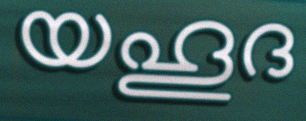
യഹൂദ